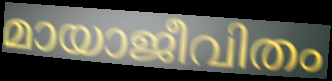
മായാജീവിതം